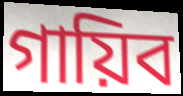
গায়িব